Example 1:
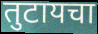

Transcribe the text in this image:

तुटायचा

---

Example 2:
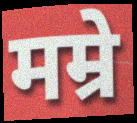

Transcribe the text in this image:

मम्रे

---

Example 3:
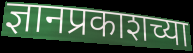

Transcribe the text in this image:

ज्ञानप्रकाशच्या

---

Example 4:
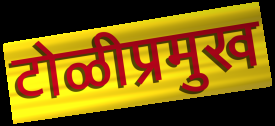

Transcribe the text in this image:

टोळीप्रमुख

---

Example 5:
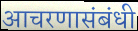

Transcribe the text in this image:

आचरणासंबंधी